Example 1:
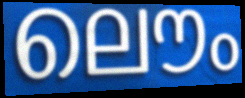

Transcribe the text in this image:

ലൌം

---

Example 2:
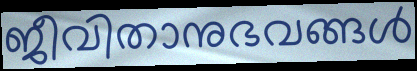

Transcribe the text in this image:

ജീവിതാനുഭവങ്ങൾ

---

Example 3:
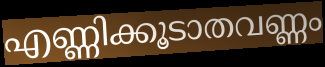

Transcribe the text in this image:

എണ്ണിക്കൂടാതവണ്ണം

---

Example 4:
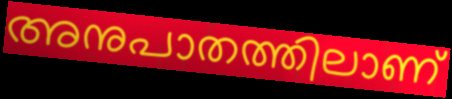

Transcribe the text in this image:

അനുപാതത്തിലാണ്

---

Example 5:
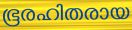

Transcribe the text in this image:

ഭൂരഹിതരായ